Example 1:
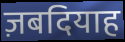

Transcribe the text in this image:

ज़बदियाह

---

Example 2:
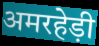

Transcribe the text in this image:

अमरहेड़ी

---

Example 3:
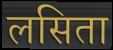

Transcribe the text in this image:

लसिता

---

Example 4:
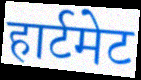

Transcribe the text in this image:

हार्टमेट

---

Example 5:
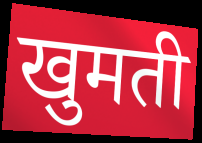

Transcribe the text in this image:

खुमती